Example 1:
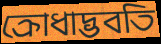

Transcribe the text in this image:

ক্রোধাদ্ভবতি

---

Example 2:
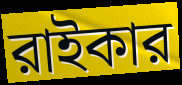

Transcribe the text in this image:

রাইকার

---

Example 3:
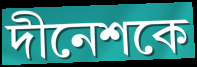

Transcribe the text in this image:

দীনেশকে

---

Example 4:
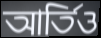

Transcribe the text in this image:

আর্তিও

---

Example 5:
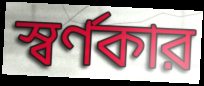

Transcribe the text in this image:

স্বর্ণকার